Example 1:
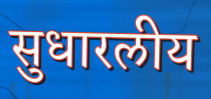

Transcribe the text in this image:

सुधारलीय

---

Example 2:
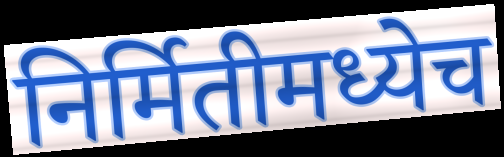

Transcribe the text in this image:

निर्मितीमध्येच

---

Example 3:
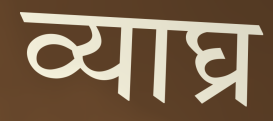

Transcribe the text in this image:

व्याघ्र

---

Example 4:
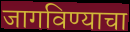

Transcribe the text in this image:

जागविण्याचा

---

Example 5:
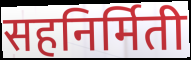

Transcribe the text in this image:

सहनिर्मिती